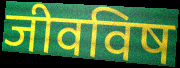
जीवविष